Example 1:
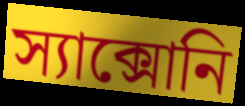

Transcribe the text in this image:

স্যাক্সোনি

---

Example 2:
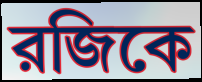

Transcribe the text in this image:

রজিকে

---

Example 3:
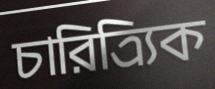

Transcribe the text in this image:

চারিত্র্যিক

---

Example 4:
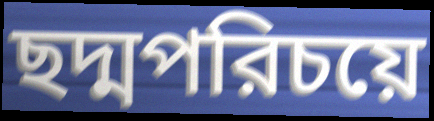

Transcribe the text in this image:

ছদ্মপরিচয়ে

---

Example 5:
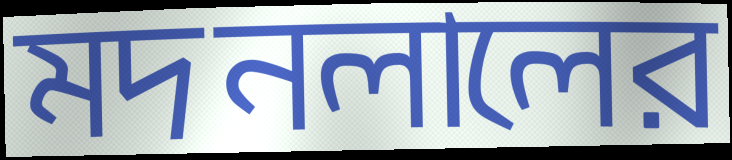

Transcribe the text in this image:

মদনলালের